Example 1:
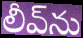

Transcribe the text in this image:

లీవ్‌ను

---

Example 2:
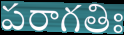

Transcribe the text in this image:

పరాగతిః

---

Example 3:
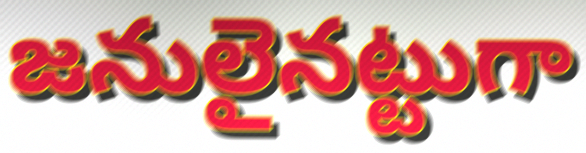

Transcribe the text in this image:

జనులైనట్టుగా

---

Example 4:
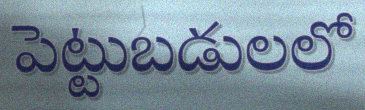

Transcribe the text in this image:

పెట్టుబడులలో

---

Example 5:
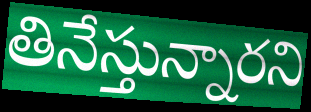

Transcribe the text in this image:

తినేస్తున్నారని